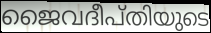
ജൈവദീപ്തിയുടെ